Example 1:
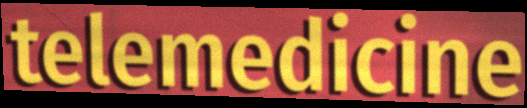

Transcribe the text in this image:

telemedicine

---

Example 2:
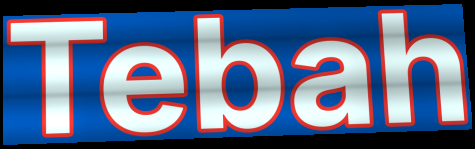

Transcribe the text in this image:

Tebah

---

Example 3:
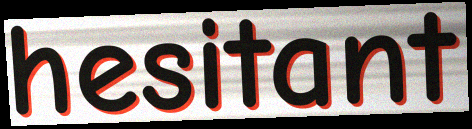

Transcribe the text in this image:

hesitant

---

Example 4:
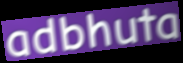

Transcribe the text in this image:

adbhuta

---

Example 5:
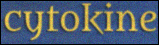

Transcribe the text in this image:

cytokine